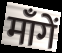
माँगें